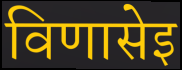
विणासेइ